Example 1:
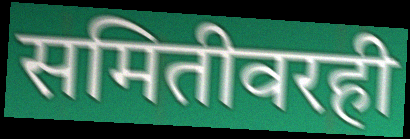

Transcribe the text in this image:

समितीवरही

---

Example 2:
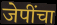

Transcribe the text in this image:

जेपींचा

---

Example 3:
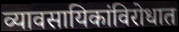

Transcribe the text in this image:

व्यावसायिकांविरोधात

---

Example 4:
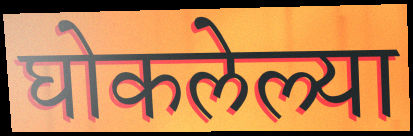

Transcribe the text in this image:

घोकलेल्या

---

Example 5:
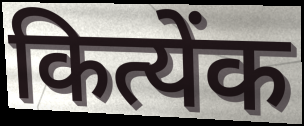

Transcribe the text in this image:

कित्येंक